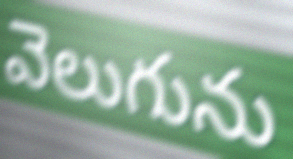
వెలుగును